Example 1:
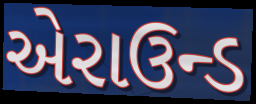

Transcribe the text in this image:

એરાઉન્ડ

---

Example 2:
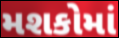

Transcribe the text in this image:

મશકોમાં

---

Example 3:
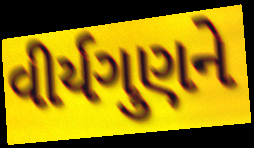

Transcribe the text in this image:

વીર્યગુણને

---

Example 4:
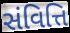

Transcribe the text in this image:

સંવિત્તિ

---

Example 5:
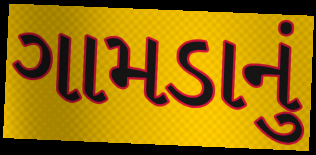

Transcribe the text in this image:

ગામડાનું